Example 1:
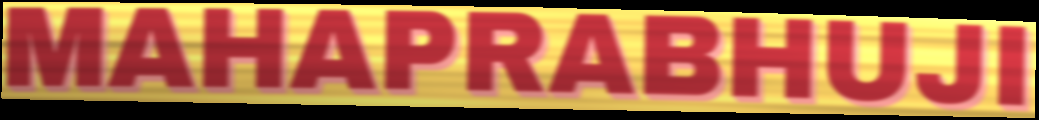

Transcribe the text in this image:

MAHAPRABHUJI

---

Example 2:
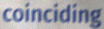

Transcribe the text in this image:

coinciding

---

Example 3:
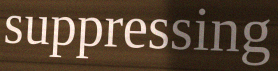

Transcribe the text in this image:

suppressing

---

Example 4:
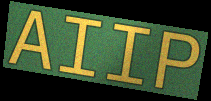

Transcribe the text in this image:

AIIP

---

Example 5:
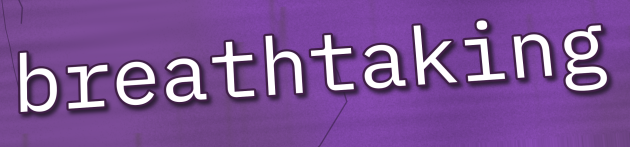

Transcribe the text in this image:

breathtaking